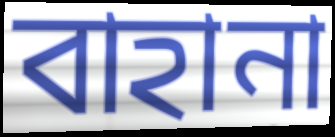
বাহানা